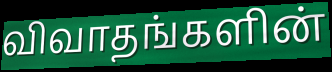
விவாதங்களின்